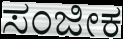
ಸಂಜೀಕ